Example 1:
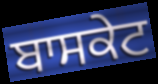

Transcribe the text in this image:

ਬਾਸਕੇਟ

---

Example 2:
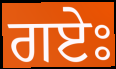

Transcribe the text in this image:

ਗਏਃ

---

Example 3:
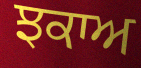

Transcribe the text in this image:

ਝਕਾਅ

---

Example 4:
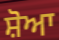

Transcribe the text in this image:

ਸ਼ੋਆ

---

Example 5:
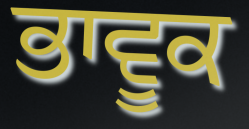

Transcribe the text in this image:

ਭਾਵੂਕ